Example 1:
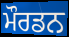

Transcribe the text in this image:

ਮੌਰਡਨ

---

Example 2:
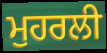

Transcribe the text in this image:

ਮੁਹਰਲੀ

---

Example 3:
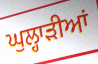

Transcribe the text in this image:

ਘੁਲ੍ਹਾੜੀਆਂ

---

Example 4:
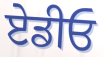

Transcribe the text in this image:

ਏਡੀਓ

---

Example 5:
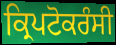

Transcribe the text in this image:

ਕ੍ਰਿਪਟੋਕਰੰਸੀ